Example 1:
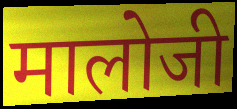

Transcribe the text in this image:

मालोजी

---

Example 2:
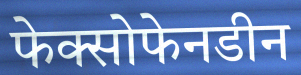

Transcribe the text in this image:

फेक्सोफेनडीन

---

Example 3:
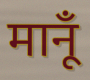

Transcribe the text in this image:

मानूँ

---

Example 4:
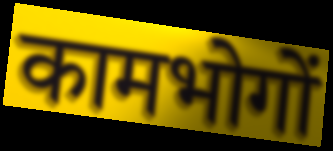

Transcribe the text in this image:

कामभोगों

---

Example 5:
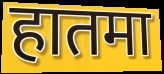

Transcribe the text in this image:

हातमा